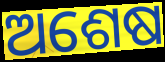
ଅଶେଷ